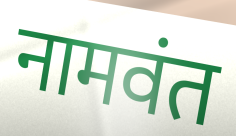
नामवंत